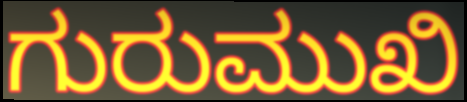
ಗುರುಮುಖಿ